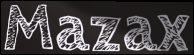
Mazax